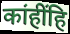
कांहींहि